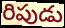
రిపుడు